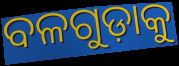
ବଳଗୁଡ଼ାକୁ